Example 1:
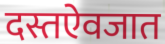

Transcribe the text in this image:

दस्तऐवजात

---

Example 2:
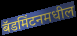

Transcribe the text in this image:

बॅडमिंटनमधील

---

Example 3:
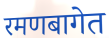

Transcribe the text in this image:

रमणबागेत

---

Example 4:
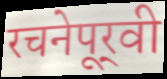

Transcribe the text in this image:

रचनेपूर्वी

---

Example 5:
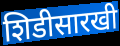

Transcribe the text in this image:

शिडीसारखी